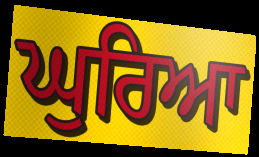
ਘੁਰਿਆ